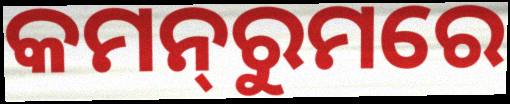
କମନ୍‌ରୁମରେ